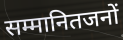
सम्मानितजनों